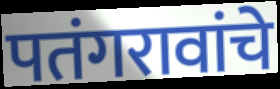
पतंगरावांचे